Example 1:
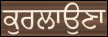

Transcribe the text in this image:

ਕੁਰਲਾਉਣਾ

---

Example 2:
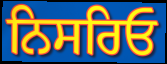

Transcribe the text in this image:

ਨਿਸਰਿਓ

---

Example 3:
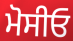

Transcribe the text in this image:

ਮੋਸੀਓ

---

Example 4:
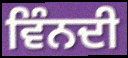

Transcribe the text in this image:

ਵਿੰਨਦੀ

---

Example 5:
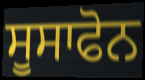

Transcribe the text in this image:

ਸੂਸਾਫੋਨ